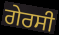
ਗੇਰਸੀ